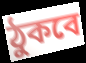
ঠুকবে